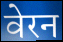
वेरन